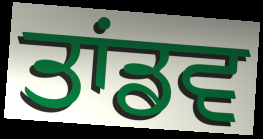
ਤਾਂਡਵ